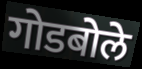
गोडबोले